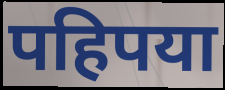
पहिपया